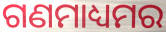
ଗଣମାଧ୍ୟମର